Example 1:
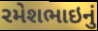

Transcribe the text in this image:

રમેશભાઇનું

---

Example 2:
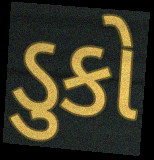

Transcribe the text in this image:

ડુકો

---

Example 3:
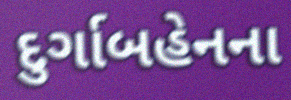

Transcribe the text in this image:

દુર્ગાબહેનના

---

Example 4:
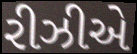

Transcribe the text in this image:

રીઝીએ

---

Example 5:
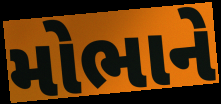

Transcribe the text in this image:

મોભાને